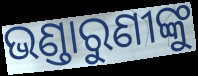
ଭଣ୍ଡାରୁଣୀଙ୍କୁ